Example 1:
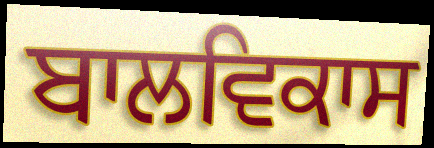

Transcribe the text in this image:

ਬਾਲਵਿਕਾਸ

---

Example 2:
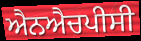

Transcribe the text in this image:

ਐਨਐਚਪੀਸੀ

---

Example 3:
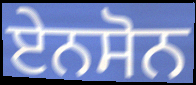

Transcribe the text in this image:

ਏਨਸੋਨ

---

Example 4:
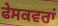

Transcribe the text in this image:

ਫੇਸਕਵਰਾਂ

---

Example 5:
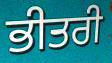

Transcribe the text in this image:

ਭੀਤਰੀ